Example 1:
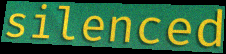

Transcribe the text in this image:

silenced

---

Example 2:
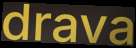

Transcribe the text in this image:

drava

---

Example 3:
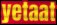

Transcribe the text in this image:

yetaat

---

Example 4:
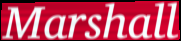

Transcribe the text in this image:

Marshall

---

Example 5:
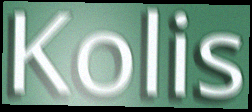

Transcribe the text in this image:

Kolis